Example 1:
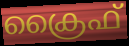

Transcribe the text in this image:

ക്രൈഫ്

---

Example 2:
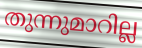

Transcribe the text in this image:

തുന്നുമാറില്ല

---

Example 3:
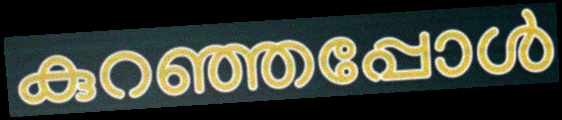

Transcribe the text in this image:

കുറഞ്ഞപ്പോൾ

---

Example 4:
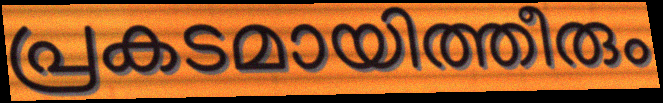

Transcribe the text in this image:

പ്രകടമായിത്തീരും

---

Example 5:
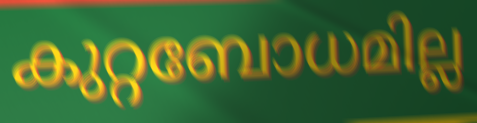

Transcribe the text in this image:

കുറ്റബോധമില്ല